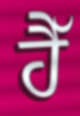
ਹੈੱ